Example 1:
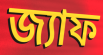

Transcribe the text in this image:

জ্যাফ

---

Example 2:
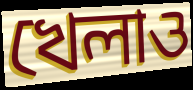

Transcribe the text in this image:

খেলাও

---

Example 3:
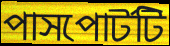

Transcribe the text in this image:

পাসপোর্টটি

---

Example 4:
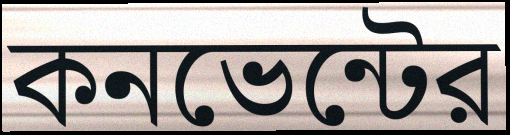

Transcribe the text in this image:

কনভেন্টের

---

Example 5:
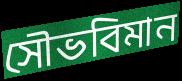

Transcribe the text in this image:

সৌভবিমান